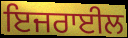
ਇਜਰਾਈਲ